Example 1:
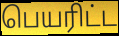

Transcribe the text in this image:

பெயரிட்ட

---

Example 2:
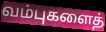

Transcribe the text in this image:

வம்புகளைத்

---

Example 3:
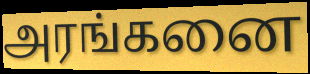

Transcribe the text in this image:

அரங்கனை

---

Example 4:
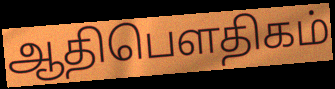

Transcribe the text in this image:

ஆதிபௌதிகம்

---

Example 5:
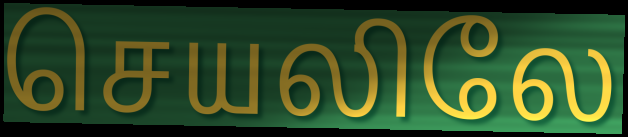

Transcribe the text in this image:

செயலிலே